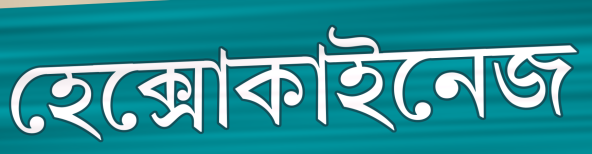
হেক্সোকাইনেজ